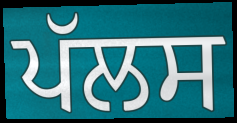
ਪੱਲਸ